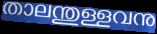
താലന്തുള്ളവനു